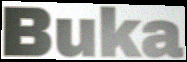
Buka